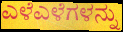
ಎಳೆಎಳೆಗಳನ್ನು